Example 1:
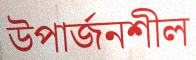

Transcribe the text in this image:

উপার্জনশীল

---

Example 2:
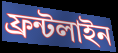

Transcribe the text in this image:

ফ্রন্টলাইন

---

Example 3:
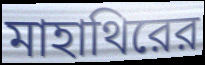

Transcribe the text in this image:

মাহাথিরের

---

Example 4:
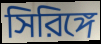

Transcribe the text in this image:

সিরিঙ্গে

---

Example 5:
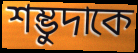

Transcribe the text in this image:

শম্ভুদাকে